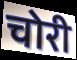
चोरी